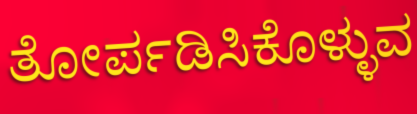
ತೋರ್ಪಡಿಸಿಕೊಳ್ಳುವ